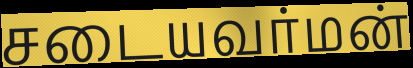
சடையவர்மன்